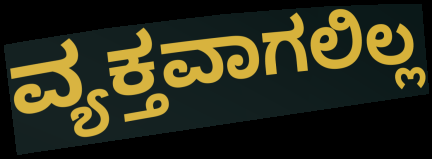
ವ್ಯಕ್ತವಾಗಲಿಲ್ಲ